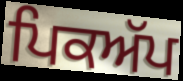
ਪਿਕਅੱਪ